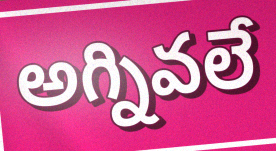
అగ్నివలే